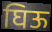
घिऊ